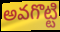
అవగొట్టి